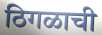
ठिगळाची